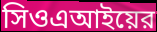
সিওএআইয়ের